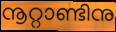
നൂറ്റാണ്ടിനു